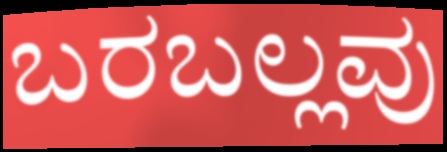
ಬರಬಲ್ಲವು